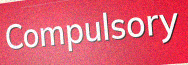
Compulsory